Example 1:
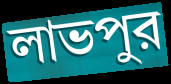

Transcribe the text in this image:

লাভপুর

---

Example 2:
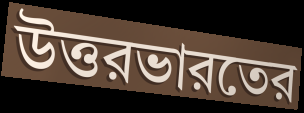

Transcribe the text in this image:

উত্তরভারতের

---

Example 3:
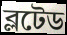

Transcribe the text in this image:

ব্লটেড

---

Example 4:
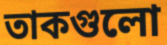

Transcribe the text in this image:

তাকগুলো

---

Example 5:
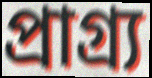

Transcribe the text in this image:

প্রাগ্র্য